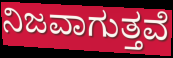
ನಿಜವಾಗುತ್ತವೆ